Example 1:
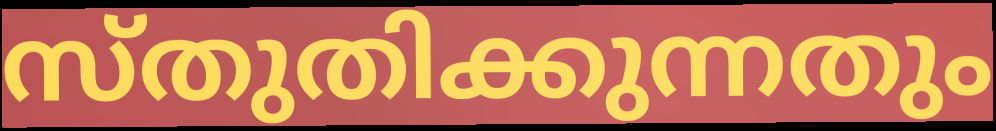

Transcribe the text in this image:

സ്തുതിക്കുന്നതും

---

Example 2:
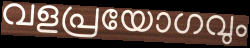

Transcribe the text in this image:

വളപ്രയോഗവും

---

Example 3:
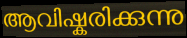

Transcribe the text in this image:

ആവിഷ്കരിക്കുന്നു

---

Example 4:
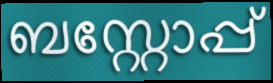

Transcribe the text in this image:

ബസ്റ്റോപ്പ്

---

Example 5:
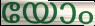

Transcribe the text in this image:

യോം